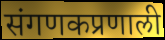
संगणकप्रणाली